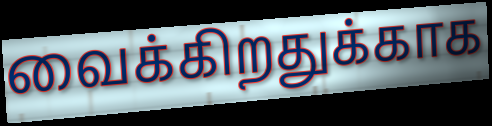
வைக்கிறதுக்காக